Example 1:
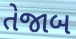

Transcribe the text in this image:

તેજાબ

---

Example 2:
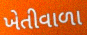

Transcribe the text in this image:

ખેતીવાળા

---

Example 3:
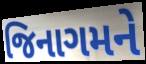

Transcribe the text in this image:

જિનાગમને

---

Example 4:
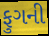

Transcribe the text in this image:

ફુગની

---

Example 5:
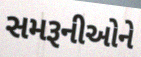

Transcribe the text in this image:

સમરૂનીઓને